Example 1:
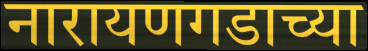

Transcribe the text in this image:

नारायणगडाच्या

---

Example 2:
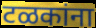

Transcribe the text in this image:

टळकांना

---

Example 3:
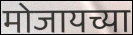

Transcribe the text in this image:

मोजायच्या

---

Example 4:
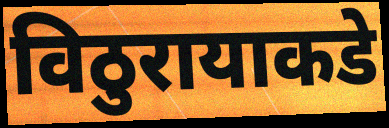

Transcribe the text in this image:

विठुरायाकडे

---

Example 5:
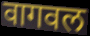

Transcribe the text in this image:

वागवल